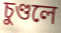
চুণ্ডলে